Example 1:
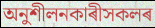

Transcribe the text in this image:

অনুশীলনকাৰীসকলৰ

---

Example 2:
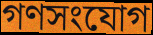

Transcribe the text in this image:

গণসংযোগ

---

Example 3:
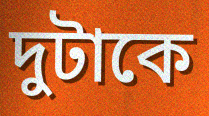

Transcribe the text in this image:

দুটাকে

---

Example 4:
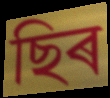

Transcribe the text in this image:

ছিৰ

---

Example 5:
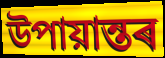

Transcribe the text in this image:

উপায়ান্তৰ